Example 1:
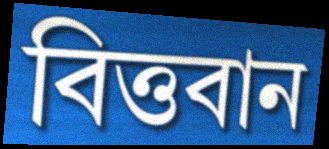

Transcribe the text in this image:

বিত্তবান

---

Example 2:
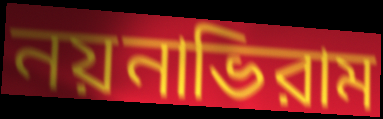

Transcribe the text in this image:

নয়নাভিরাম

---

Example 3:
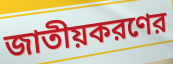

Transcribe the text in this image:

জাতীয়করণের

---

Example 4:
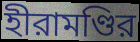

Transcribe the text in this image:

হীরামণ্ডির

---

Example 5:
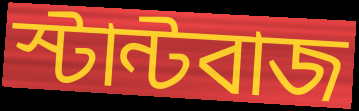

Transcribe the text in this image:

স্টান্টবাজ